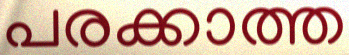
പരക്കാത്ത